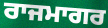
ਰਾਜਮਾਗਰ